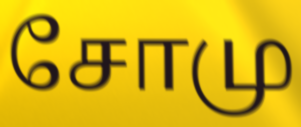
சோமு